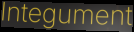
Integument